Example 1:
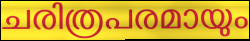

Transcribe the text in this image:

ചരിത്രപരമായും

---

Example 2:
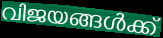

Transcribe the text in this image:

വിജയങ്ങൾക്ക്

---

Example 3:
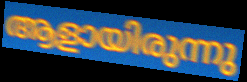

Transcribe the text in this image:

ആളായിരുന്നു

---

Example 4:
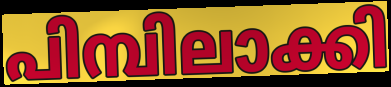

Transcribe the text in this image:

പിമ്പിലാക്കി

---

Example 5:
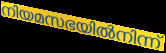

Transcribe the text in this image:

നിയമസഭയിൽനിന്ന്